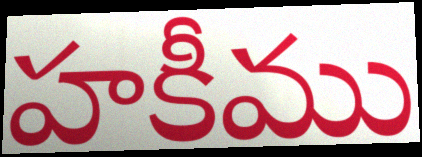
హకీము